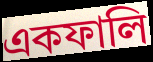
একফালি